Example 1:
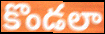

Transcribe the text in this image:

కొండలా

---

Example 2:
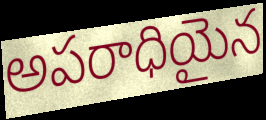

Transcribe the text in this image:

అపరాధియైన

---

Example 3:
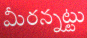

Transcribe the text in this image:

మీరన్నట్టు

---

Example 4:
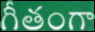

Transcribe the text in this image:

గీతంగా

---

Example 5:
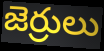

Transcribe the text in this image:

జెర్రులు